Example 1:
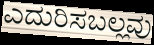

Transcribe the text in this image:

ಎದುರಿಸಬಲ್ಲವು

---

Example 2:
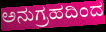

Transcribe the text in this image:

ಅನುಗ್ರಹದಿಂದ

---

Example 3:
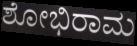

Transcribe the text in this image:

ಶೋಭಿರಾಮ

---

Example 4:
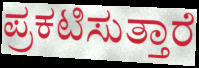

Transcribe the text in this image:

ಪ್ರಕಟಿಸುತ್ತಾರೆ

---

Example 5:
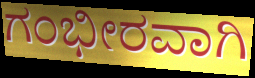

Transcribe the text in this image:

ಗಂಭೀರವಾಗಿ